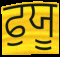
ਫੁਯੂ